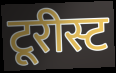
टूरीस्ट